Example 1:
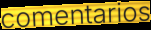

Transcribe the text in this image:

comentarios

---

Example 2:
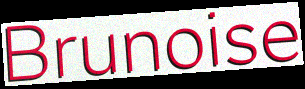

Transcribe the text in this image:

Brunoise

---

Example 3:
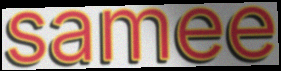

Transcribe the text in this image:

samee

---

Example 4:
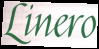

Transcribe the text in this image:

Linero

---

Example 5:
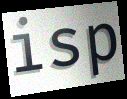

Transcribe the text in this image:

isp